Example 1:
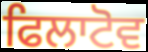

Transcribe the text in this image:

ਫਿਲਾਟੋਵ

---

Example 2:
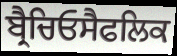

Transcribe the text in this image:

ਬ੍ਰੈਚਿਓਸੈਫਲਿਕ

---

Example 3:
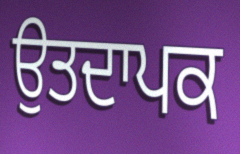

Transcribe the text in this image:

ਉਤਦਾਪਕ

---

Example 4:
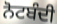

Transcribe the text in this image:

ਨੋਟਬੰਦੀ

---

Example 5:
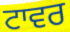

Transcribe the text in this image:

ਟਾਵਰ